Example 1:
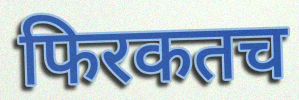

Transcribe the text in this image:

फिरकतच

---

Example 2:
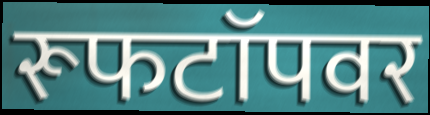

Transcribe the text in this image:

रूफटॉपवर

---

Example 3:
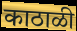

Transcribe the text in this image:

काठाळी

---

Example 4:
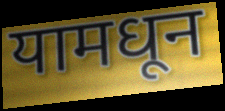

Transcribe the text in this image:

यामधून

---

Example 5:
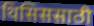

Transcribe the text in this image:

थिसिससाठी